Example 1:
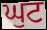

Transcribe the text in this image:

ਘੁਟ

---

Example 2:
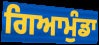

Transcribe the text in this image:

ਗਿਆਮੁੰਡਾ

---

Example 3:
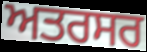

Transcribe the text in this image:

ਅਤਰਸਰ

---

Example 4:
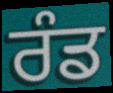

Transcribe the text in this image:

ਰੰਡ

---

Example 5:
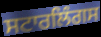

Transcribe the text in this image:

ਸਟਾਰਲਿੰਗਸ